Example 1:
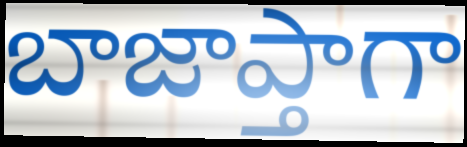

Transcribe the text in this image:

బాజాప్తాగా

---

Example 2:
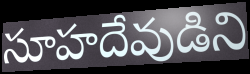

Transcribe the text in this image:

సూహదేవుడిని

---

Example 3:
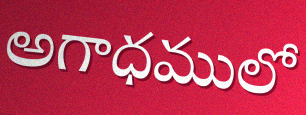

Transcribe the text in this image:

అగాధములో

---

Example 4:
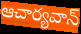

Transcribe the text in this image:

ఆచార్యవాన్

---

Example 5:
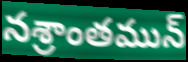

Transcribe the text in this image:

నశ్రాంతమున్